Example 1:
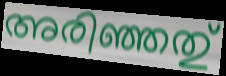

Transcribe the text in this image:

അരിഞ്ഞതു്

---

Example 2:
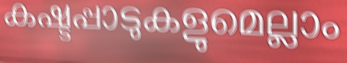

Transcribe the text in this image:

കഷ്ടപ്പാടുകളുമെല്ലാം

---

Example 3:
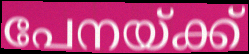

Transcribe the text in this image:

പേനയ്ക്ക്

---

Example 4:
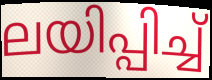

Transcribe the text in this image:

ലയിപ്പിച്ച്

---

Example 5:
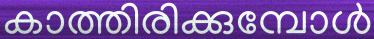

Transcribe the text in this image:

കാത്തിരിക്കുമ്പോൾ